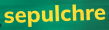
sepulchre